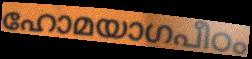
ഹോമയാഗപീഠം